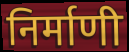
निर्माणी